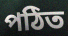
পঠিত